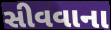
સીવવાના